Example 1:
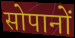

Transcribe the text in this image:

सोपानों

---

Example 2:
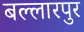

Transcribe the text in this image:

बल्लारपुर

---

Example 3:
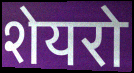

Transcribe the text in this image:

शेयरो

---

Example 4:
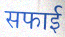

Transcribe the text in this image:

सफाई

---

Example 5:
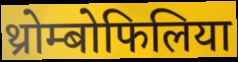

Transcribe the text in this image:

थ्रोम्बोफिलिया